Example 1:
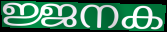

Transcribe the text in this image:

ജ്ജനക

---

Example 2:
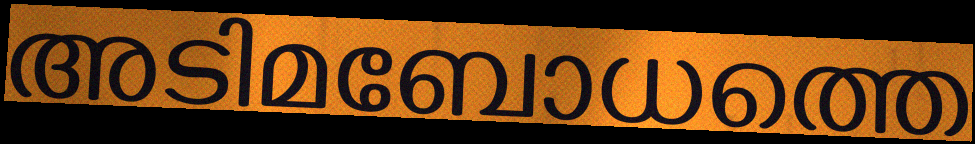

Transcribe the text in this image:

അടിമബോധത്തെ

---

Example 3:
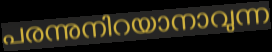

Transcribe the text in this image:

പരന്നുനിറയാനാവുന്ന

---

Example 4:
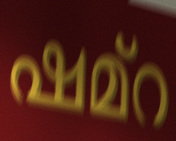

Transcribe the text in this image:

ഷമ്റ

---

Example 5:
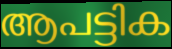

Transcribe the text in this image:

ആപട്ടിക